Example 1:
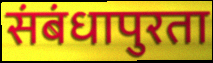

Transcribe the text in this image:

संबंधापुरता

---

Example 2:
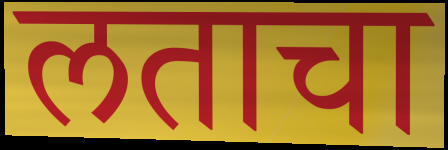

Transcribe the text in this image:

लताचा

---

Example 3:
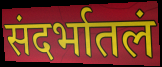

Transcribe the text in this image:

संदर्भातलं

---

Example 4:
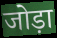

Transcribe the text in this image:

जोड़ा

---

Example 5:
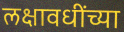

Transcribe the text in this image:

लक्षावधींच्या